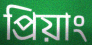
প্রিয়াং